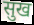
सुख